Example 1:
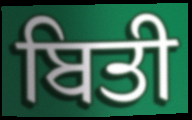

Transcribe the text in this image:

ਬਿਤੀ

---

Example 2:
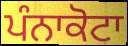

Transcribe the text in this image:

ਪੰਨਾਕੋਟਾ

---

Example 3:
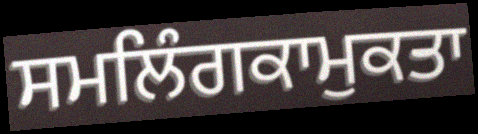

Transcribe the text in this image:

ਸਮਲਿੰਗਕਾਮੁਕਤਾ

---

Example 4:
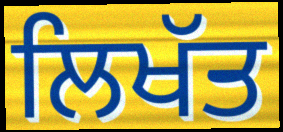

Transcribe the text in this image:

ਲਿਖੱਤ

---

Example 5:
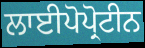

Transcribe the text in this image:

ਲਾਈਪੋਪ੍ਰੋਟੀਨ